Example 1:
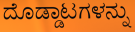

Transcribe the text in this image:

ದೊಡ್ಡಾಟಗಳನ್ನು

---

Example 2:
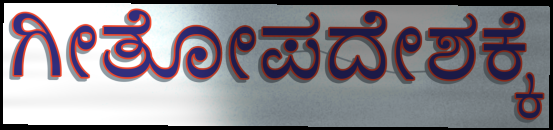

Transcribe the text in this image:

ಗೀತೋಪದೇಶಕ್ಕೆ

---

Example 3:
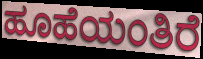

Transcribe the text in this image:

ಹೂಹೆಯಂತಿರೆ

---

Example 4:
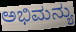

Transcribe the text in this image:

ಅಭಿಮನ್ಯು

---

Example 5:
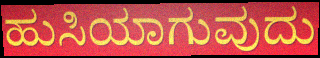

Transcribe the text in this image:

ಹುಸಿಯಾಗುವುದು